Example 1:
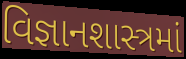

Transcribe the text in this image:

વિજ્ઞાનશાસ્ત્રમાં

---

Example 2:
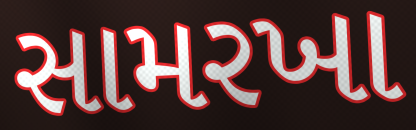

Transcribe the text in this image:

સામરખા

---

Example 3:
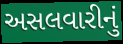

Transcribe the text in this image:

અસલવારીનું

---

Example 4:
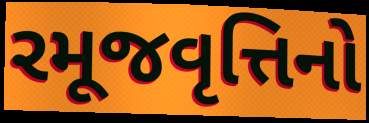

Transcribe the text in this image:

રમૂજવૃત્તિનો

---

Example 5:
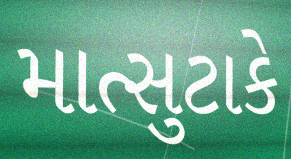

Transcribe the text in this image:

માત્સુટાકે